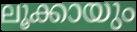
ലൂക്കായും